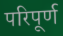
परिपूर्ण